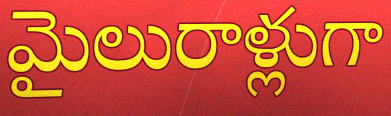
మైలురాళ్లుగా